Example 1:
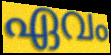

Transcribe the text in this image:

ഏവം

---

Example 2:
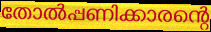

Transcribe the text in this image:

തോൽപ്പണിക്കാരന്റെ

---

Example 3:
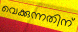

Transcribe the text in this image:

വെക്കുന്നതിന്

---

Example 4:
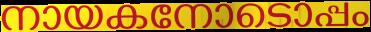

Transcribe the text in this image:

നായകനോടൊപ്പം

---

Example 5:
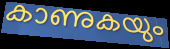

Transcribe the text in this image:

കാണുകയും